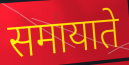
समायाते